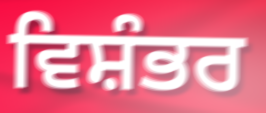
ਵਿਸ਼ੰਭਰ